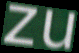
zu